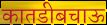
कातडीबचाऊ